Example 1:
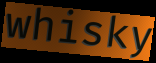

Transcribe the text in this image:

whisky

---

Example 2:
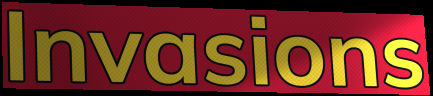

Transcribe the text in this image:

Invasions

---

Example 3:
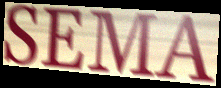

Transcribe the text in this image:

SEMA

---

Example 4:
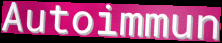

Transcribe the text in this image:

Autoimmun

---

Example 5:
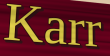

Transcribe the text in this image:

Karr